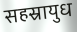
सहस्रायुध